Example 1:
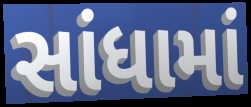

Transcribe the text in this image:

સાંધામાં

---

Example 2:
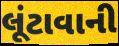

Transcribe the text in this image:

લૂંટાવાની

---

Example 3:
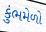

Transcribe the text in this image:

કુંભમેળો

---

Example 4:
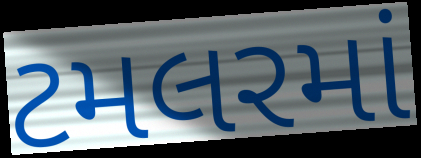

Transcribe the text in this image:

ટમલરમાં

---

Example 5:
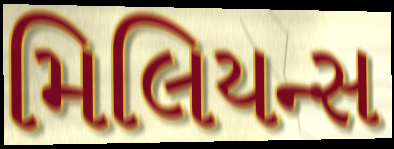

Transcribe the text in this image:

મિલિયન્સ